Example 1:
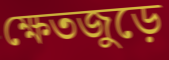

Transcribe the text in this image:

ক্ষেতজুড়ে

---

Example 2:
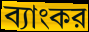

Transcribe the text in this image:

ব্যাংকর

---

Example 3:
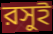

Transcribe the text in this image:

রসুই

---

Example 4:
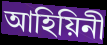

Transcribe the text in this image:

আহিয়িনী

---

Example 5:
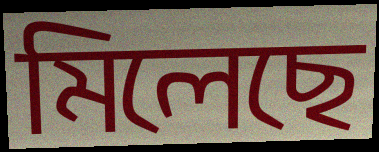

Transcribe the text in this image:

মিলেছে